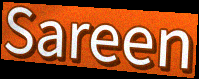
Sareen